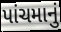
પાંચમાનું